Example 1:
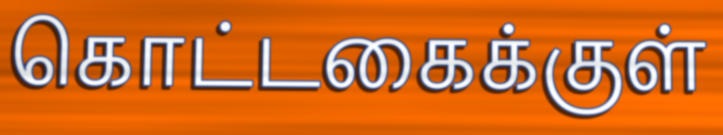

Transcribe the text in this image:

கொட்டகைக்குள்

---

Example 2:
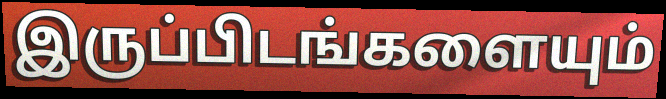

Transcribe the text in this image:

இருப்பிடங்களையும்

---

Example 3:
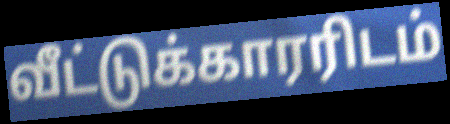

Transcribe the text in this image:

வீட்டுக்காரரிடம்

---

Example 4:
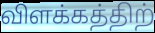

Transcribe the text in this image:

விளக்கத்திற்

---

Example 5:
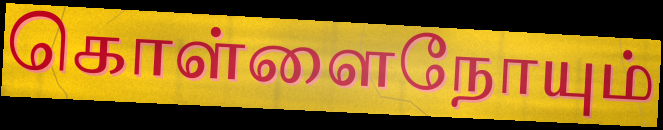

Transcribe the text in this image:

கொள்ளைநோயும்